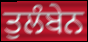
ਤੁਲੰਬੇਨ